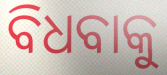
ବିଧବାକୁ